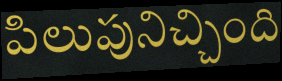
పిలుపునిచ్చింది